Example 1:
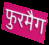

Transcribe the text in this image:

फुरमैग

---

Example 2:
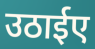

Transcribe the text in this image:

उठाईए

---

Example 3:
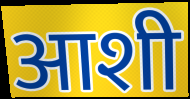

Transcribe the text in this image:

आशी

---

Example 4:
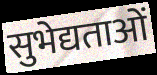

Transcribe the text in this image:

सुभेद्यताओं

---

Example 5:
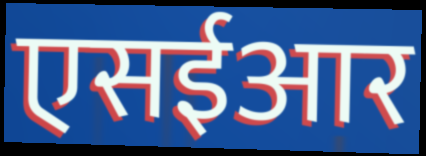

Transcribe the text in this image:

एसईआर